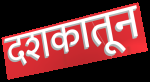
दशकातून